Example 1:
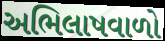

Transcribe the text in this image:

અભિલાષવાળો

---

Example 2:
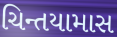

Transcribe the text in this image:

ચિન્તયામાસ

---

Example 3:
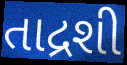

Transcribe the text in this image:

તાદ્રશી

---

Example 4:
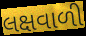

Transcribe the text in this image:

લક્ષવાળી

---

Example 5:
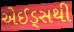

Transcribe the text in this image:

એઈડ્સથી